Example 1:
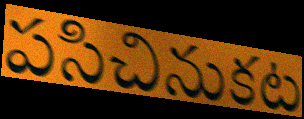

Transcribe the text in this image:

పసిచినుకట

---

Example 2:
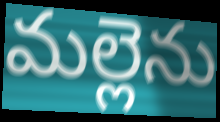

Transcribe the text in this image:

మల్లెను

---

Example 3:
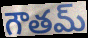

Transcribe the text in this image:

గౌతమ్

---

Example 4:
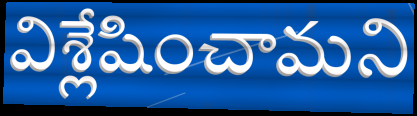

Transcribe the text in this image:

విశ్లేషించామని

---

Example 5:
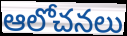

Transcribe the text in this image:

ఆలోచనలు